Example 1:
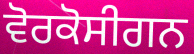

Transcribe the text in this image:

ਵੋਰਕੋਸੀਗਨ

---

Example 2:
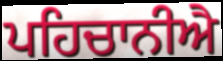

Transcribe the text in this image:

ਪਹਿਚਾਨੀਐ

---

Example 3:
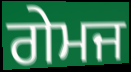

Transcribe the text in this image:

ਗੇਮਜ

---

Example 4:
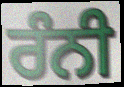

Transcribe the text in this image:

ਰੰਨੀ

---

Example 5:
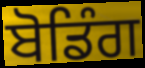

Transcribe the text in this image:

ਬੋਡਿੰਗ